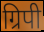
ग्रिपी